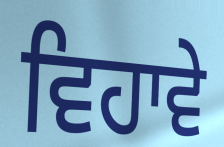
ਵਿਹਾਵੇ